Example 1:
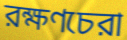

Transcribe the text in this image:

রক্ষণচেরা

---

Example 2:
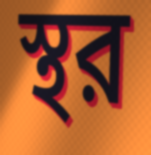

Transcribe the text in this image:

স্থর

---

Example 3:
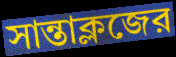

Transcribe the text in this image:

সান্তাক্লজের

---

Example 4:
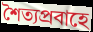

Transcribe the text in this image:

শৈত্যপ্রবাহে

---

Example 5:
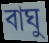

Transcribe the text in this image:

বাঘু